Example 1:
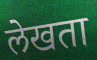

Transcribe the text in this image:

लेखता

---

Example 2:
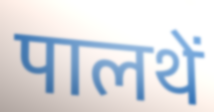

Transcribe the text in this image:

पालथें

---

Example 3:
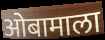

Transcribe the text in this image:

ओबामाला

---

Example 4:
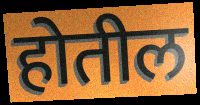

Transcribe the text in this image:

होतील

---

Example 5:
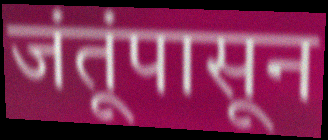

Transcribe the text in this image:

जंतूंपासून